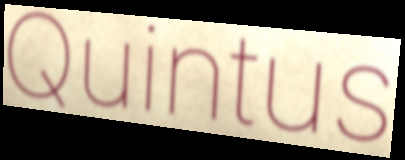
Quintus